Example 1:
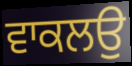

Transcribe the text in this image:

ਵਾਕਲਉ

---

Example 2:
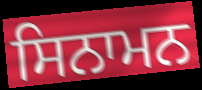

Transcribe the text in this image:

ਸਿਨਾਮਨ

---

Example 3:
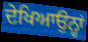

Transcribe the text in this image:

ਦੇਖਿਆਉਨ੍ਹਾਂ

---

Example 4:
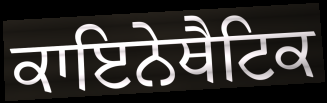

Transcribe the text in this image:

ਕਾਇਨੇਥੈਟਿਕ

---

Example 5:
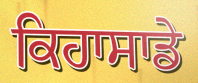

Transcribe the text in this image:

ਕਿਹਾਸਾਡੇ